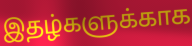
இதழ்களுக்காக